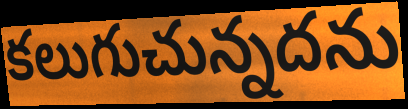
కలుగుచున్నదను